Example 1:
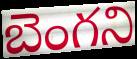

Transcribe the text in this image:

బెంగని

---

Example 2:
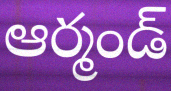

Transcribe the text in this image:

ఆర్మండ్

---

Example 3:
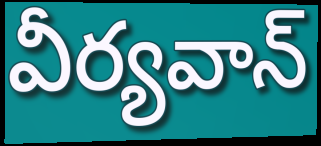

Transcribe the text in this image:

వీర్యవాన్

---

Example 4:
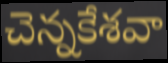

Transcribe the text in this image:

చెన్నకేశవా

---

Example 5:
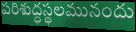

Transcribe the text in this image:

పరిశుద్ధస్థలమునందు